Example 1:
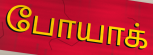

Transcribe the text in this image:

போயாக்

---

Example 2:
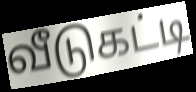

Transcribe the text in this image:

வீடுகட்டி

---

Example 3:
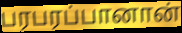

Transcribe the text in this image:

பரபரப்பானான்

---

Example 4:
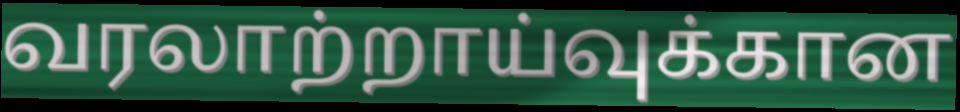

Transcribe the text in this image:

வரலாற்றாய்வுக்கான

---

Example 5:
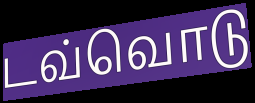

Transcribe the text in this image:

டவ்வொடு